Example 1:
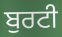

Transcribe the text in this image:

ਬੁਰਟੀ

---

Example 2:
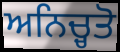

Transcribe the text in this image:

ਅਨਿਚ੍ਚਤੋ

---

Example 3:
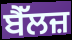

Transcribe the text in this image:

ਬੈੱਲਜ਼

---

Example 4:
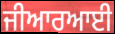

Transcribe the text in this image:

ਜੀਆਰਆਈ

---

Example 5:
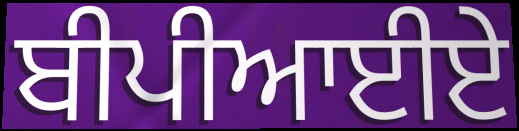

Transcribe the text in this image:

ਬੀਪੀਆਈਏ